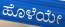
ಹೊಳೆಯೇ